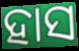
ହାସ